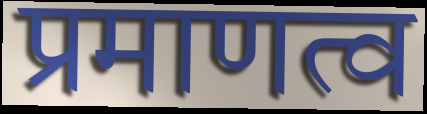
प्रमाणत्व